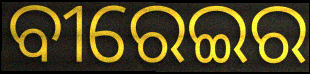
ବୀରେଇର